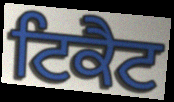
ਟਿਕੈਟ